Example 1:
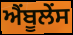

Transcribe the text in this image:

ਐਂਬੂਲੇਂਸ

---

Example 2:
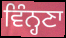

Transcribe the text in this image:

ਵਿੰਨ੍ਹਣਾ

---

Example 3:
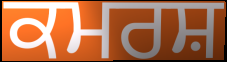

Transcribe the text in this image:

ਕਮਰਸ਼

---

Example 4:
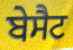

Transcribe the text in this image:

ਬੇਸੈਟ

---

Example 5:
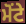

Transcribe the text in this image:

ਮੋਂਟੇ